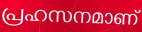
പ്രഹസനമാണ്